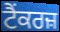
ਟੈਂਕਰਜ਼